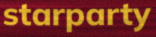
starparty